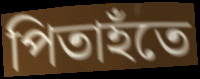
পিতাহঁতে